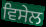
ਵਿਸੇਲ